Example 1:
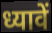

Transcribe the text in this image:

ध्यावें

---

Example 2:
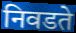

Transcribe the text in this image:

निवडते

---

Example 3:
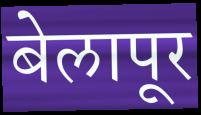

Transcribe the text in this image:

बेलापूर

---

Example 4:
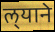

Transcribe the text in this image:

ल्याने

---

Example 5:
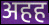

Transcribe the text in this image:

अहह